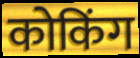
कोकिंग